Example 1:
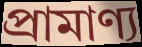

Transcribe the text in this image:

প্রামাণ্য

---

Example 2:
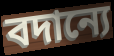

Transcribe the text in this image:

বদান্যে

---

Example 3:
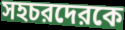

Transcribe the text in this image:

সহচরদেরকে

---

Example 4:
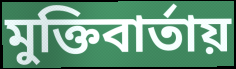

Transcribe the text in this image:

মুক্তিবার্তায়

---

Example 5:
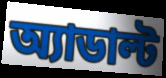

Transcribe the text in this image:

অ্যাডাল্ট